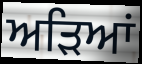
ਅੜਿਆਂ